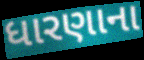
ધારણાના